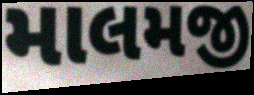
માલમજી